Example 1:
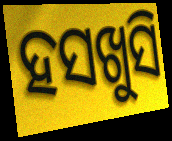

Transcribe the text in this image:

ହସଖୁସି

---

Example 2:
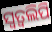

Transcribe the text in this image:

ସ୍ଵତ୍ଵଲିପି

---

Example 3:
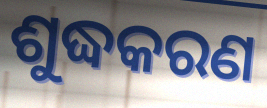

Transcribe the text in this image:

ଶୁଦ୍ଧକରଣ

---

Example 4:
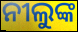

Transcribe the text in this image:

ନୀଲୁଙ୍କ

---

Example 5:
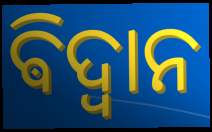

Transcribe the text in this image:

ଵିଦ୍ଵାନ